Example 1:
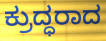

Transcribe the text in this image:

ಕ್ರುದ್ಧರಾದ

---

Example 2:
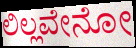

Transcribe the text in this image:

ಲಿಲ್ಲವೇನೋ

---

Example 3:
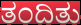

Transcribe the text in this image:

ತಂದಿತು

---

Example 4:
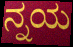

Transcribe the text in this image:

ನ್ನಯ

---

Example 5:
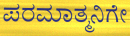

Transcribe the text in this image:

ಪರಮಾತ್ಮನಿಗೇ